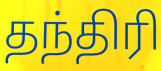
தந்திரி